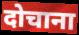
दोचाना